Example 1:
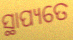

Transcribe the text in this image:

ସ୍ଥାପ୍ୟତେ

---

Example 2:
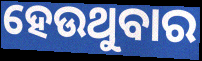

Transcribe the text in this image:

ହେଉଥୁବାର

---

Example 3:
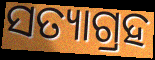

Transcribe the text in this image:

ସତ୍ୟାଗ୍ରହ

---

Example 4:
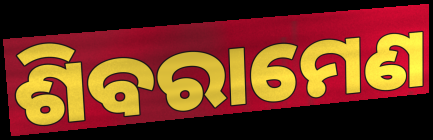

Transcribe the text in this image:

ଶିବରାମେଣ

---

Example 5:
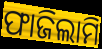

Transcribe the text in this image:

ଫାଜିଲାମି